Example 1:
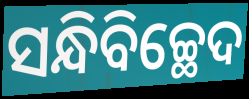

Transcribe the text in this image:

ସନ୍ଧିବିଚ୍ଛେଦ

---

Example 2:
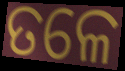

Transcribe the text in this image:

ତଳେ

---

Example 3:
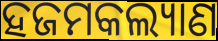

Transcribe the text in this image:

ହଜମକଲ୍ୟାଣ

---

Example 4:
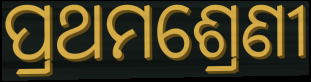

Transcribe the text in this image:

ପ୍ରଥମଶ୍ରେଣୀ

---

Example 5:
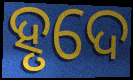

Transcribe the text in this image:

ହୃଦେ